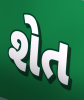
શેત